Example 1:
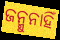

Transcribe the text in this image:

ଜନ୍ମୁନାହିଁ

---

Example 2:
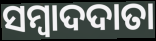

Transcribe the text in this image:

ସମ୍ବାଦଦାତା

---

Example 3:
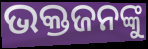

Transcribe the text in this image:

ଭକ୍ତଜନଙ୍କୁ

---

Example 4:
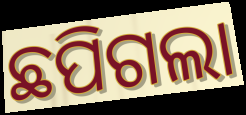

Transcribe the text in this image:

ଛପିଗଲା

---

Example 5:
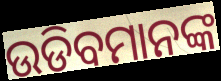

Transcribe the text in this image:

ଉଡିବମାନଙ୍କ